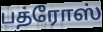
பத்ரோஸ்